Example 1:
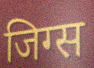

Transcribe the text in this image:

जिग्स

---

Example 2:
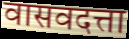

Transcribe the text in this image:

वासवदत्ता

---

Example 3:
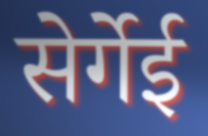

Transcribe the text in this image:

सेर्गेई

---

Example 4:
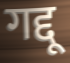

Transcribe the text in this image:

गद्दू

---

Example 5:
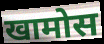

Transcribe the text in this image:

खामोस